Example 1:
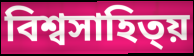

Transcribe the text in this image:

বিশ্বসাহিত্য়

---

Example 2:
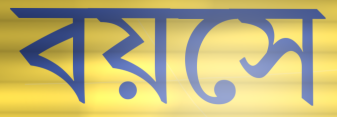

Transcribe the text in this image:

বয়সে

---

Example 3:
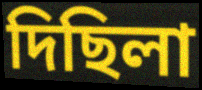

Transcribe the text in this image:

দিছিলা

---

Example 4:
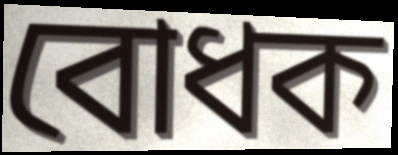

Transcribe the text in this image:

বোধক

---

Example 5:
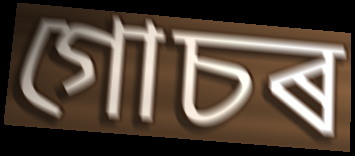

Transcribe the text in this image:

গোচৰ